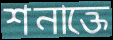
শনাক্তে